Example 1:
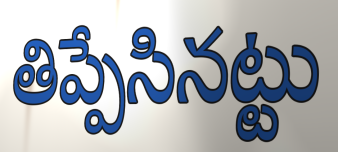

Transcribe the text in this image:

తిప్పేసినట్టు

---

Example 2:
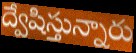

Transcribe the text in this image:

ద్వేషిస్తున్నారు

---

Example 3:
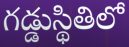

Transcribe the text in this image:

గడ్డుస్థితిలో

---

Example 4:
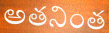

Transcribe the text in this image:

అతనింత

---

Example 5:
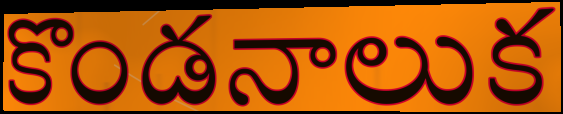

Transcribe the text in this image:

కొండనాలుక